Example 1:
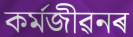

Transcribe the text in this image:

কৰ্মজীৱনৰ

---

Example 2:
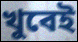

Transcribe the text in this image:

খুবেই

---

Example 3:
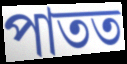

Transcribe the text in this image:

পাতত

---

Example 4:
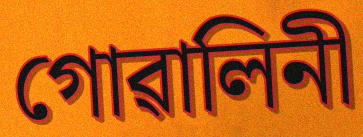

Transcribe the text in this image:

গোৱালিনী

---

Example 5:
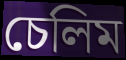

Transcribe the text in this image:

চেলিম